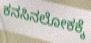
ಕನಸಿನಲೋಕಕ್ಕೆ